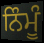
ਨਿੰਮੂੰ